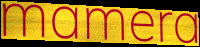
mamera